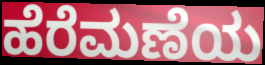
ಹೆರೆಮಣೆಯ